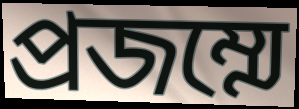
প্রজম্মে